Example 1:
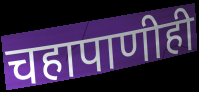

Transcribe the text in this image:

चहापाणीही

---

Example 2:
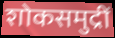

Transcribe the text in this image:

शोकसमुद्रीं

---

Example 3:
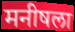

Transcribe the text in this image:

मनीषला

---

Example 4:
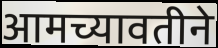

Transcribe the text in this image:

आमच्यावतीने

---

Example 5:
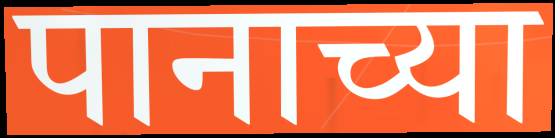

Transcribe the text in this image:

पानाच्या